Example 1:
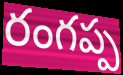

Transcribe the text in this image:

రంగప్ప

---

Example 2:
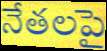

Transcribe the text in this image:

నేతలపై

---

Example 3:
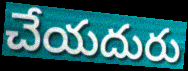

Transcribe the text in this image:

చేయదురు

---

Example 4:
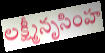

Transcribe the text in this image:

లక్ష్మీనృసింహ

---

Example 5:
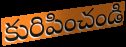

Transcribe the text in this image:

కురిపించండి